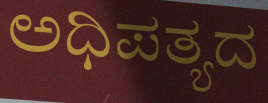
ಅಧಿಪತ್ಯದ